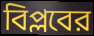
বিপ্লবের